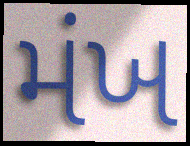
મંખ